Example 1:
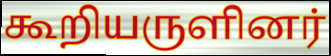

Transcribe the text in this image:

கூறியருளினர்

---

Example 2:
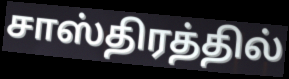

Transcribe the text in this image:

சாஸ்திரத்தில்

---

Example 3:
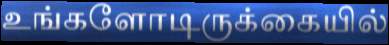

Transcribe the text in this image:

உங்களோடிருக்கையில்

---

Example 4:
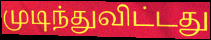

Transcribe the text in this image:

முடிந்துவிட்டது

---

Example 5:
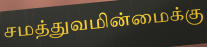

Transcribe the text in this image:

சமத்துவமின்மைக்கு